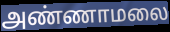
அண்ணாமலை